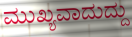
ಮುಖ್ಯವಾದುದ್ದು